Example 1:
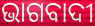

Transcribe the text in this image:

ଭାଗବାଦୀ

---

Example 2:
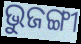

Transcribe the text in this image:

ଭୁଜଙ୍ଗୀ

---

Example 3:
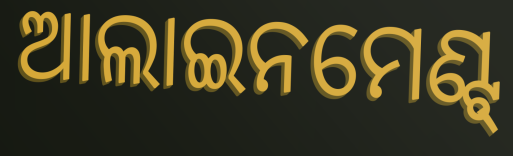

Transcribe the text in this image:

ଆଲାଇନମେଣ୍ଟ୍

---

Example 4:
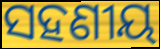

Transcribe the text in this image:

ସହଣୀୟ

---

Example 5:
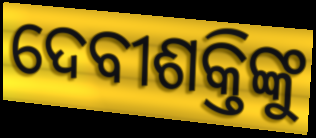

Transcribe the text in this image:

ଦେବୀଶକ୍ତିଙ୍କୁ